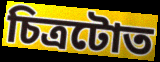
চিত্ৰটোত